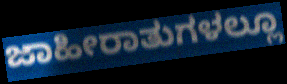
ಜಾಹೀರಾತುಗಳಲ್ಲೂ